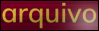
arquivo